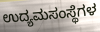
ಉದ್ಯಮಸಂಸ್ಥೆಗಳ